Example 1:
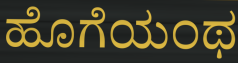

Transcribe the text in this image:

ಹೊಗೆಯಂಥ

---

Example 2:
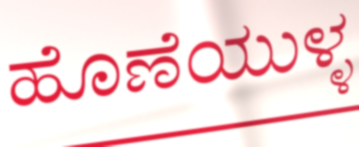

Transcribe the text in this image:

ಹೊಣೆಯುಳ್ಳ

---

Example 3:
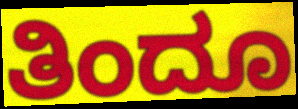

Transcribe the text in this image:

ತಿಂದೂ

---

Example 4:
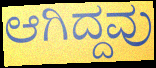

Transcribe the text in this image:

ಆಗಿದ್ದವು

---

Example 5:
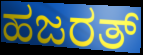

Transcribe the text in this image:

ಹಜರತ್